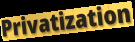
Privatization